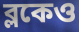
ব্লকেও